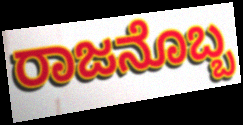
ರಾಜನೊಬ್ಬ